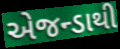
એજન્ડાથી